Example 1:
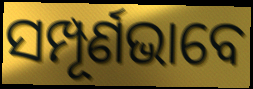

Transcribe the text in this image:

ସମ୍ପୂର୍ଣଭାବେ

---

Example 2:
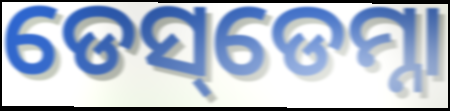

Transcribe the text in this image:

ଡେସ୍‌ଡେମ୍ନା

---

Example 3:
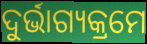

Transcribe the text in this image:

ଦୁର୍ଭାଗ୍ୟକ୍ରମେ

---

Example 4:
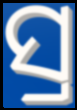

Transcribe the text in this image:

ସ୍ର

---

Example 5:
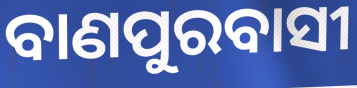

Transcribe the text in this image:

ବାଣପୁରବାସୀ